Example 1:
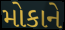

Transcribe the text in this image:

મોકાને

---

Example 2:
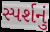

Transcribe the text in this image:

સ્પર્શનું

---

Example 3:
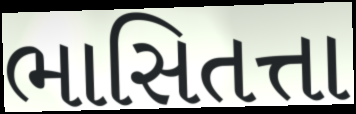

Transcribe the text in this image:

ભાસિતત્તા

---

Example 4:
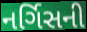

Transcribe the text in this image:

નર્ગિસની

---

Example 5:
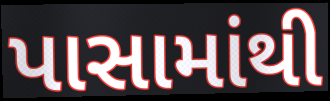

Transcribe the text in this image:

પાસામાંથી